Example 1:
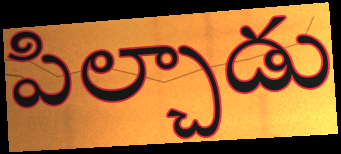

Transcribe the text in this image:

పిల్చాడు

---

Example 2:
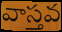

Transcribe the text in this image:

వాస్తవ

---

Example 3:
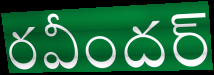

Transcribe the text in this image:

రవీందర్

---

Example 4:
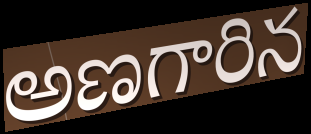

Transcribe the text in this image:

అణగారిన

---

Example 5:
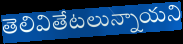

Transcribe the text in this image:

తెలివితేటలున్నాయని